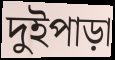
দুইপাড়া